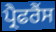
ਪ੍ਰੈਫਰੈਂਸ